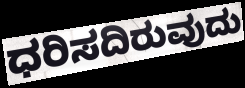
ಧರಿಸದಿರುವುದು